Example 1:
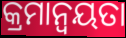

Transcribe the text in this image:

କ୍ରମାନ୍ବୟତା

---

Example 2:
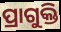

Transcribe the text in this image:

ପ୍ରାଗୁକ୍ତି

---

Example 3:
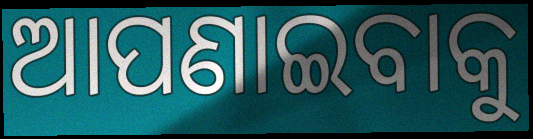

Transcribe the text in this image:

ଆପଣାଇବାକୁ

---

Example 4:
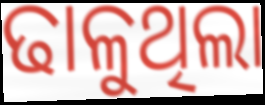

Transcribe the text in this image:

ଢାଳୁଥିଲା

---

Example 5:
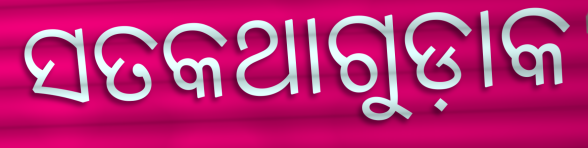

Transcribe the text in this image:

ସତକଥାଗୁଡ଼ାକ